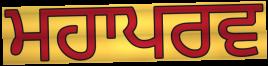
ਮਹਾਪਰਵ